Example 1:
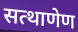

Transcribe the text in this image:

सत्थाणेण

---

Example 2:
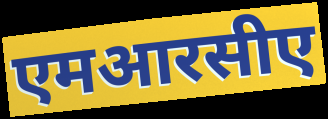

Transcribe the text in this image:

एमआरसीए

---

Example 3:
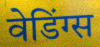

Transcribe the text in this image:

वेडिंग्स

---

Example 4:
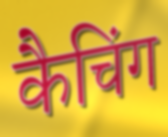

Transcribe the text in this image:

कैचिंग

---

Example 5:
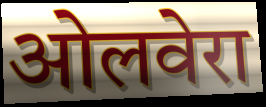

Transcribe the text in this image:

ओलवेरा